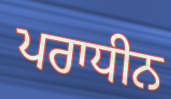
ਪਰਾਧੀਨ